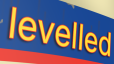
levelled